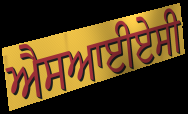
ਐਸਆਈਏਸੀ